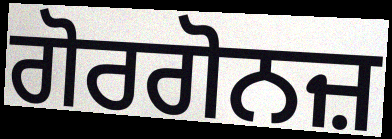
ਗੋਰਗੋਨਜ਼